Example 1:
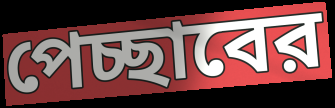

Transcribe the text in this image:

পেচ্ছাবের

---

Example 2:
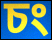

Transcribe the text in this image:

চং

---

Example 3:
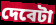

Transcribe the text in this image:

দেবেটা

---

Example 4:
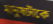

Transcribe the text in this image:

মানুষটাকে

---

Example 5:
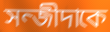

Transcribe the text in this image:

সন্জীদাকে